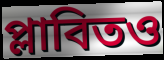
প্লাবিতও